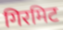
गिरमिट